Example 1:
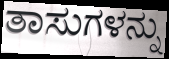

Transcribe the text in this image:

ತಾಸುಗಳನ್ನು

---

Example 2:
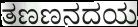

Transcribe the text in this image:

ತಣಣನದಯ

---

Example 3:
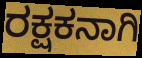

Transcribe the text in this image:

ರಕ್ಷಕನಾಗಿ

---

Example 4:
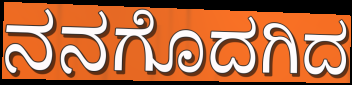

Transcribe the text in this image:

ನನಗೊದಗಿದ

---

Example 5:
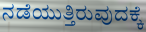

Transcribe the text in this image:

ನಡೆಯುತ್ತಿರುವುದಕ್ಕೆ